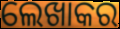
ଲେଖାକର